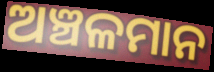
ଅଞ୍ଚଳମାନ